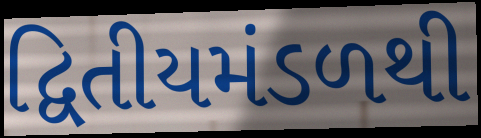
દ્વિતીયમંડળથી